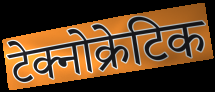
टेक्नोक्रेटिक